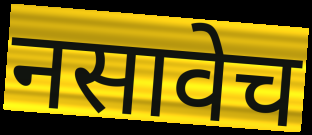
नसावेच